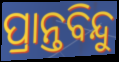
ପ୍ରାନ୍ତବିନ୍ଦୁ